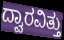
ದ್ವಾರವಿತ್ತು